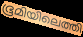
ഭൂമിയിലെത്തി